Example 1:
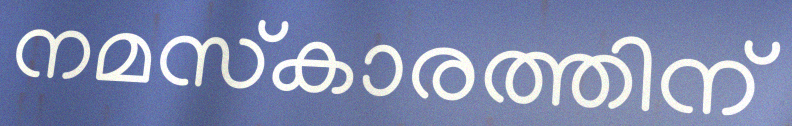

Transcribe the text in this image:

നമസ്‌കാരത്തിന്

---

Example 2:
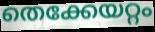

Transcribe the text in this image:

തെക്കേയറ്റം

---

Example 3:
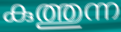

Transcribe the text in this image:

കുത്തുന്ന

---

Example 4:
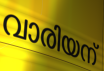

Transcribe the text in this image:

വാരിയന്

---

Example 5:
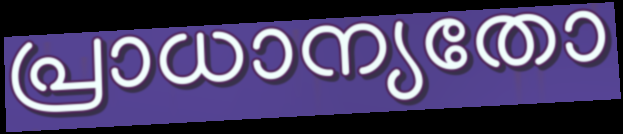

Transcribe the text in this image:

പ്രാധാന്യതോ